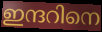
ഇന്ദറിനെ